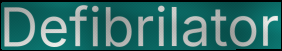
Defibrilator